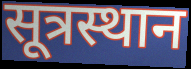
सूत्रस्थान